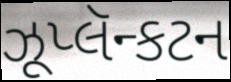
ઝૂપ્લૅન્કટન